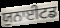
ਯੁਨਾਈਟਡ